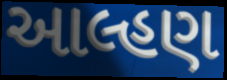
આલ્હણ